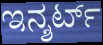
ಇನ್ಶರ್ಟ್